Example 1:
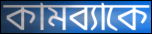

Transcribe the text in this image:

কামব্যাকে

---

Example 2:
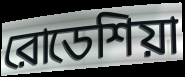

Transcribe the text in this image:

রোডেশিয়া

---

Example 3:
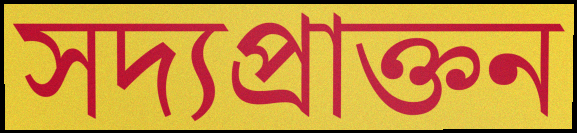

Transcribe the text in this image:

সদ্যপ্রাক্তন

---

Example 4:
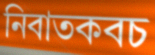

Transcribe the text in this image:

নিবাতকবচ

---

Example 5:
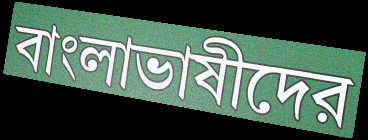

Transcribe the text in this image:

বাংলাভাষীদের